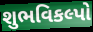
શુભવિકલ્પો